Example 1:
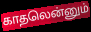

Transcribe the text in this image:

காதலென்னும்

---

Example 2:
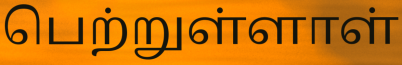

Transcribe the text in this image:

பெற்றுள்ளாள்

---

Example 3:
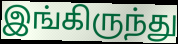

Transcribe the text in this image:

இங்கிருந்து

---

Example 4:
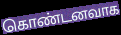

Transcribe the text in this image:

கொண்டனவாக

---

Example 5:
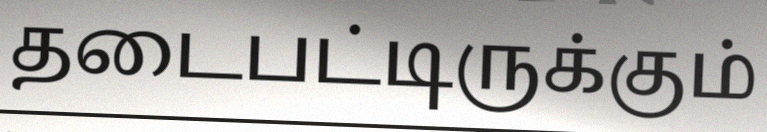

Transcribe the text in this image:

தடைபட்டிருக்கும்